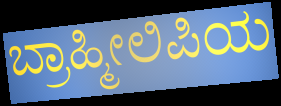
ಬ್ರಾಹ್ಮೀಲಿಪಿಯ